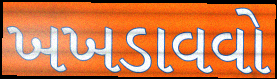
ખખડાવવો